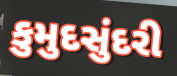
કુમુદસુંદરી